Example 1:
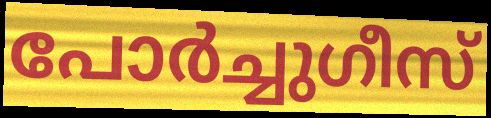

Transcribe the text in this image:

പോർച്ചുഗീസ്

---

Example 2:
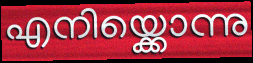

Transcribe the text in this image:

എനിയ്ക്കൊന്നു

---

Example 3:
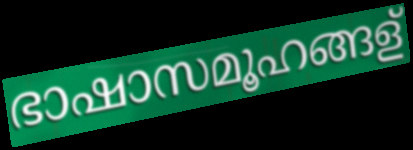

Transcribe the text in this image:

ഭാഷാസമൂഹങ്ങള്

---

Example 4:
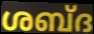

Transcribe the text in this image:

ശബ്ദ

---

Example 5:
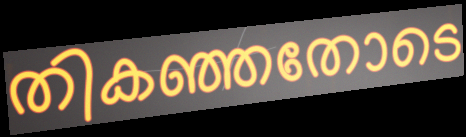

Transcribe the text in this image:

തികഞ്ഞതോടെ